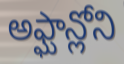
అఫ్ఘాన్లోని